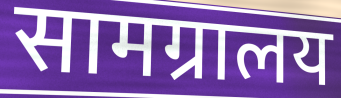
सामग्रालय